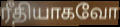
ரீதியாகவோ